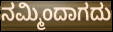
ನಮ್ಮಿಂದಾಗದು